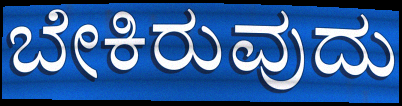
ಬೇಕಿರುವುದು